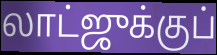
லாட்ஜுக்குப்